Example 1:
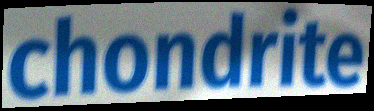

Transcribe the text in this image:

chondrite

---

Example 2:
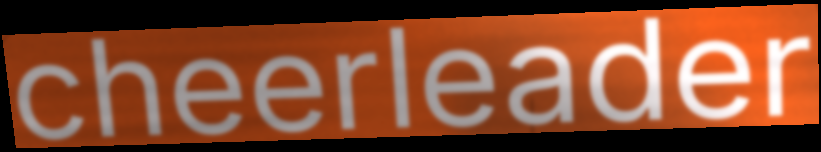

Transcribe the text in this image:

cheerleader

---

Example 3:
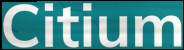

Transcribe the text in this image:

Citium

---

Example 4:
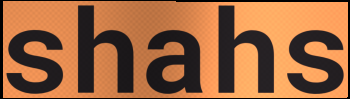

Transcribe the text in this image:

shahs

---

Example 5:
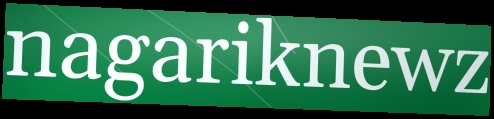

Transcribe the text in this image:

nagariknewz